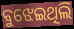
ବୁଝେଇଥିଲି